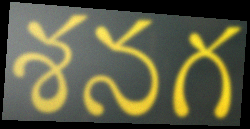
శనగ